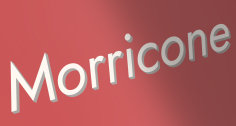
Morricone